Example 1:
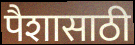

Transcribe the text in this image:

पैशासाठी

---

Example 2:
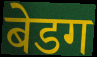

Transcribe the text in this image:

बेडग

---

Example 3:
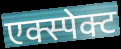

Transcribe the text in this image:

एक्स्पेक्ट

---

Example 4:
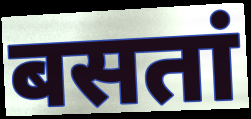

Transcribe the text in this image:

बसतां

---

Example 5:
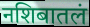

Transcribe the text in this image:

नशिबातलं